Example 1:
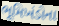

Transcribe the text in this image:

ભૂમિખંડોના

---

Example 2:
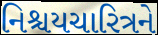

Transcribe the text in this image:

નિશ્ચયચારિત્રને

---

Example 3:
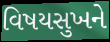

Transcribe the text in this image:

વિષયસુખને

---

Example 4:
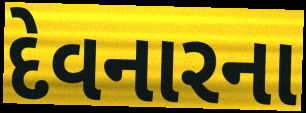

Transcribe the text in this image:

દેવનારના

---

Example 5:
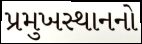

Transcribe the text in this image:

પ્રમુખસ્થાનનો